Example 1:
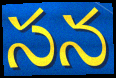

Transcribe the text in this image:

సన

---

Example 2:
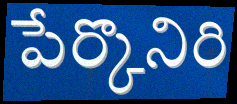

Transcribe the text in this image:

పేర్కొనిరి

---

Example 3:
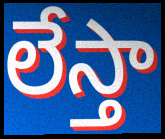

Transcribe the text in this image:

లేస్తా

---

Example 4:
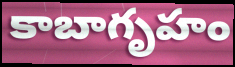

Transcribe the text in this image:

కాబాగృహం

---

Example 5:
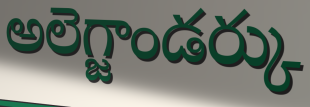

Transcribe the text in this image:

అలెగ్జాండర్కు